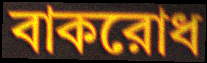
বাকরোধ